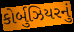
કોર્બુઝિયરનું